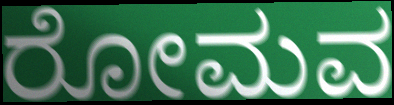
ರೋಮವ